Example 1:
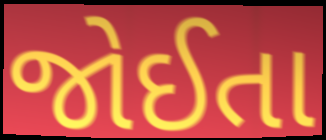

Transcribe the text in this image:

જોઈતા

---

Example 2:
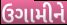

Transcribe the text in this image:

ઉગામીને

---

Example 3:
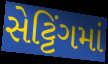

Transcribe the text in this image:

સેટ્ટિંગમાં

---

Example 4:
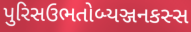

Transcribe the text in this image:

પુરિસઉભતોબ્યઞ્જનકસ્સ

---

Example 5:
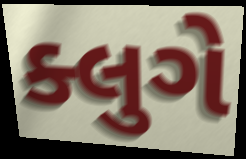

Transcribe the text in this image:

ક્લુગે